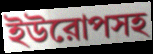
ইউরোপসহ